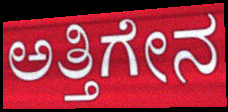
ಅತ್ತಿಗೇನ